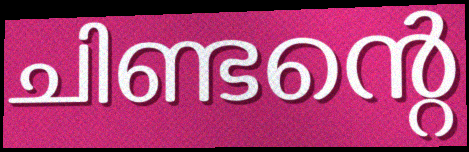
ചിണ്ടന്റെ